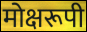
मोक्षरूपी